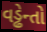
વડ્ઢેન્તો